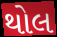
થોલ